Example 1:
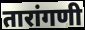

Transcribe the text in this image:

तारांगणी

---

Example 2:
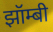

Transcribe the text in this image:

झॉम्बी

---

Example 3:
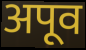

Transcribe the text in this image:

अपूव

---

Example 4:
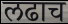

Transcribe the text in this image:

लढाच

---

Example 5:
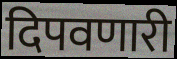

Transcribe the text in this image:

दिपवणारी